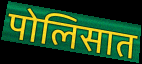
पोलिसात